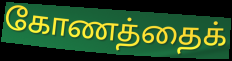
கோணத்தைக்